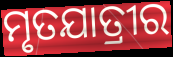
ମୃତଯାତ୍ରୀର